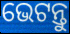
ଭେଟନ୍ତୁ